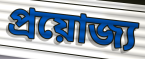
প্রয়োজ্য